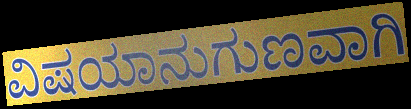
ವಿಷಯಾನುಗುಣವಾಗಿ